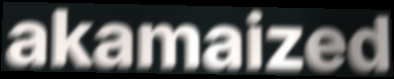
akamaized